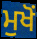
ਮੁਖੋਂ